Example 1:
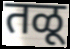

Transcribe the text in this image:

तळू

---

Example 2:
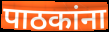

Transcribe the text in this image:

पाठकांना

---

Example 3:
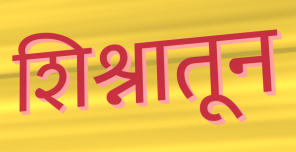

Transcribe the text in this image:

शिश्नातून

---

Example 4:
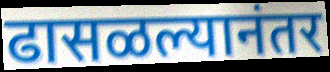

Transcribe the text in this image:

ढासळल्यानंतर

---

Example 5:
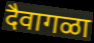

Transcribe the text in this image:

दैवागळा